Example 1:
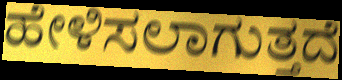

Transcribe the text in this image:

ಹೇಳಿಸಲಾಗುತ್ತದೆ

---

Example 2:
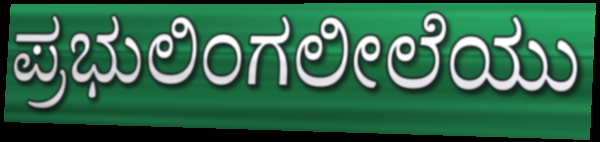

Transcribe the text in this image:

ಪ್ರಭುಲಿಂಗಲೀಲೆಯು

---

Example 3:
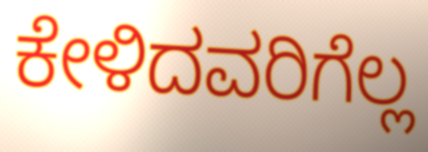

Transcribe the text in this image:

ಕೇಳಿದವರಿಗೆಲ್ಲ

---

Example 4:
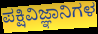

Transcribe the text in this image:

ಪಕ್ಷಿವಿಜ್ಞಾನಿಗಳ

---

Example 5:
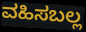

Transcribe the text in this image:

ವಹಿಸಬಲ್ಲ